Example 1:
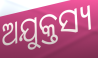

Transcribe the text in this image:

ଅଯୁକ୍ତସ୍ୟ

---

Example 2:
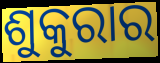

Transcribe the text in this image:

ଶୁକୁରାର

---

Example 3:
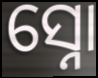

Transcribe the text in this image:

ସ୍ନୋ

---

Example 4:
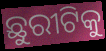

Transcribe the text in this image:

ଛୁରୀଟିକୁ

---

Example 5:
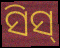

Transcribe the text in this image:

ସିସ୍